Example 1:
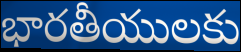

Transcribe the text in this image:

భారతీయులకు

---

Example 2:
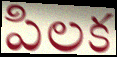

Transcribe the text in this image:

పిలక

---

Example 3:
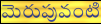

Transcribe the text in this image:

మెరుపువంటి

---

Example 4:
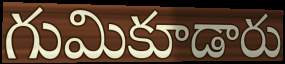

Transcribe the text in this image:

గుమికూడారు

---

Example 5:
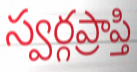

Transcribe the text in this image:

స్వర్గప్రాప్తి